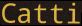
Catti